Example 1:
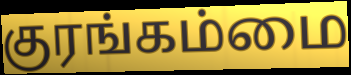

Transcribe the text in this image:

குரங்கம்மை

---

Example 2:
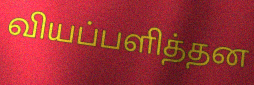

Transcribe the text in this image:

வியப்பளித்தன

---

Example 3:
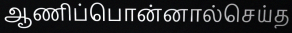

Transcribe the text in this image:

ஆணிப்பொன்னால்செய்த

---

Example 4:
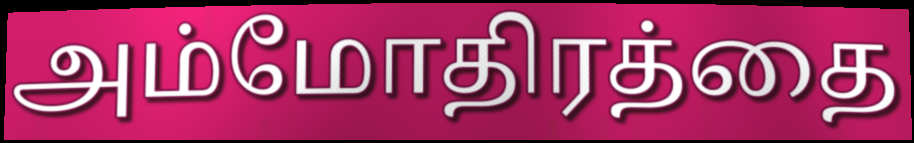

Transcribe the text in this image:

அம்மோதிரத்தை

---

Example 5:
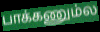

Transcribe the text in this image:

பாக்கணும்ல